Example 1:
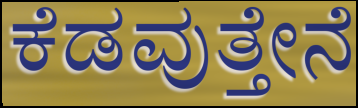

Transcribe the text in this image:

ಕೆಡವುತ್ತೇನೆ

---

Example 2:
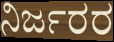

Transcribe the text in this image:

ನಿರ್ಜರರ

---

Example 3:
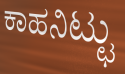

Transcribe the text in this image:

ಕಾಹನಿಟ್ಟು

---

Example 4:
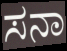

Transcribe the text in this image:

ಸನಾ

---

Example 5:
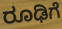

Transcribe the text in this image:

ರೂಢಿಗೆ